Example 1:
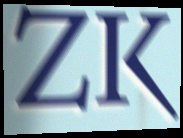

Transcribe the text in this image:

ZK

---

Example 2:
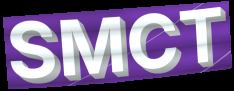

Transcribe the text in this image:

SMCT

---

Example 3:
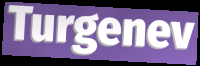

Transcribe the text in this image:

Turgenev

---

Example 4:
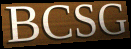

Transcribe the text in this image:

BCSG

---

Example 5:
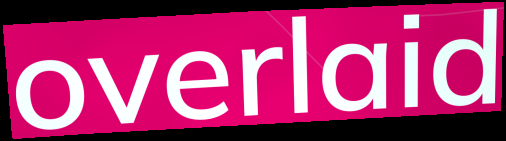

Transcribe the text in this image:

overlaid